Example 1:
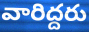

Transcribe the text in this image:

వారిద్దరు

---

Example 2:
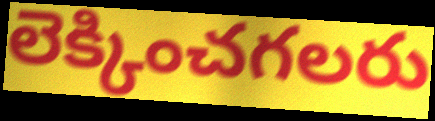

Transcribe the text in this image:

లెక్కించగలరు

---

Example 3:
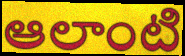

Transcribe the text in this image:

ఆలాంటి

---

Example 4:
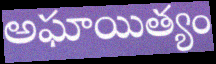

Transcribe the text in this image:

అఘాయిత్యం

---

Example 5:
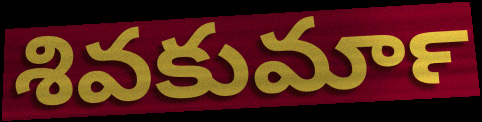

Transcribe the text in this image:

శివకుమార్‍